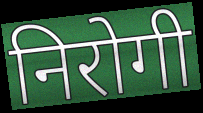
निरोगी